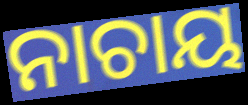
ନାଚାୟ